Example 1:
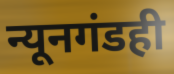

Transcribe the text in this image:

न्यूनगंडही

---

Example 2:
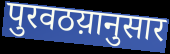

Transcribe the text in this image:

पुरवठय़ानुसार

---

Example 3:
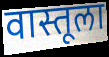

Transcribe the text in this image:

वास्तूला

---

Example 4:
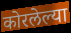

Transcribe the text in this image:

कोरलेल्या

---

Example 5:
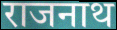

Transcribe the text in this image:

राजनाथ